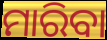
ମାରିବା